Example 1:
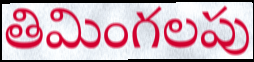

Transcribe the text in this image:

తిమింగలపు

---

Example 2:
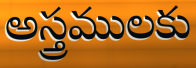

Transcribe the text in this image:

అస్త్రములకు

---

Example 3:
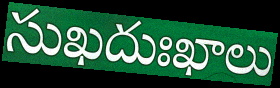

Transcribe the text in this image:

సుఖదుఃఖాలు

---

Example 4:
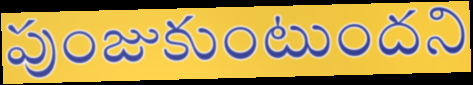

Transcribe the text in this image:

పుంజుకుంటుందని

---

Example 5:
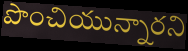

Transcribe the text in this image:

పొంచియున్నారని